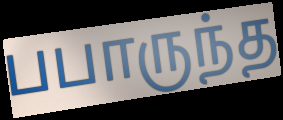
பபாருந்த